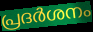
പ്രദർശനം